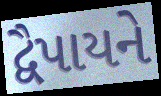
દ્વૈપાયને